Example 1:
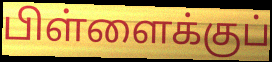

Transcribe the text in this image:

பிள்ளைக்குப்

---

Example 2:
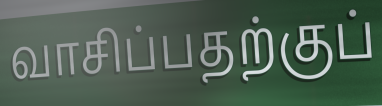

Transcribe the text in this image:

வாசிப்பதற்குப்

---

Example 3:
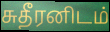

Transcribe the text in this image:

சுதீரனிடம்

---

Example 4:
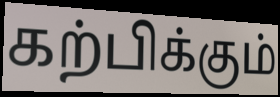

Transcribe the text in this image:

கற்பிக்கும்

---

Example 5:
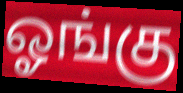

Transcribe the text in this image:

ஓங்கு